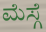
ಮೆಸ್ಗೆ